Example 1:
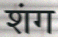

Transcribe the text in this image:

शंग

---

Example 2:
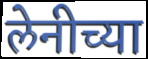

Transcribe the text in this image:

लेनीच्या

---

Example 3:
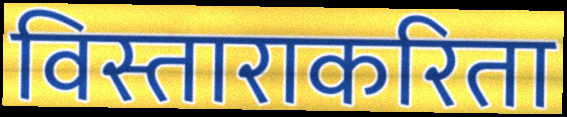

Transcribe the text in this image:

विस्ताराकरिता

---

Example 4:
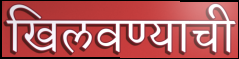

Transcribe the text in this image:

खिलवण्याची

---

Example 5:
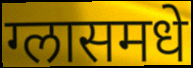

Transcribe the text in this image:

ग्लासमधे